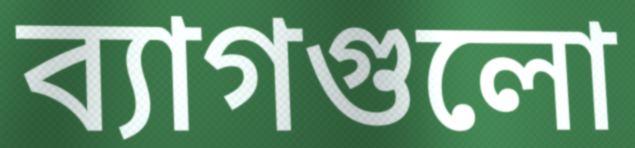
ব্যাগগুলো